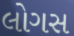
લોગસ